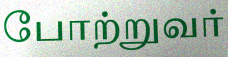
போற்றுவர்